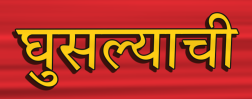
घुसल्याची